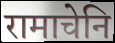
रामाचेनि